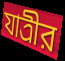
যাত্রীর